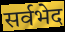
सर्वभेद